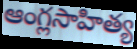
ఆంగ్లసాహిత్య